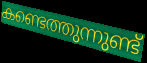
കണ്ടെത്തുന്നുണ്ട്